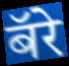
बॅरे